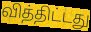
வித்திட்டது